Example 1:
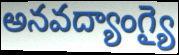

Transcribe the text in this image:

అనవద్యాంగ్యై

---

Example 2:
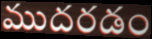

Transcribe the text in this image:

ముదరడం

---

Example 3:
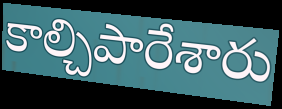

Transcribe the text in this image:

కాల్చిపారేశారు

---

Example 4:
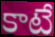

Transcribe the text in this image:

కాటే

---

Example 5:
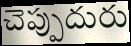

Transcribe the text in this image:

చెప్పుదురు